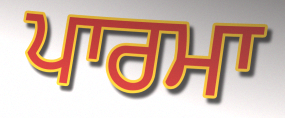
ਪਾਰਮਾ